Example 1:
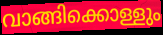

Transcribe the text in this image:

വാങ്ങിക്കൊള്ളും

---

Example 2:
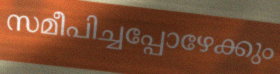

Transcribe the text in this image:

സമീപിച്ചപ്പോഴേക്കും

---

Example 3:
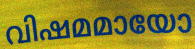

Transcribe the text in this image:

വിഷമമായോ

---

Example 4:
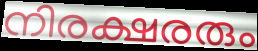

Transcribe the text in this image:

നിരക്ഷരരും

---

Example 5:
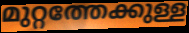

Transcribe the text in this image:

മുറ്റത്തേക്കുള്ള